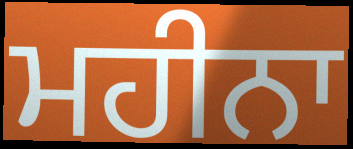
ਮਹੀਨਾ